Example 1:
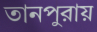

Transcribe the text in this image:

তানপুরায়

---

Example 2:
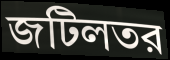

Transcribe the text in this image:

জটিলতর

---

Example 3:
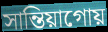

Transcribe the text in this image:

সান্তিয়াগোয়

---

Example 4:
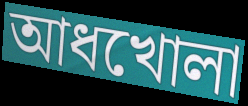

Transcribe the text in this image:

আধখোলা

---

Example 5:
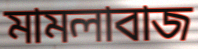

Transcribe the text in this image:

মামলাবাজ